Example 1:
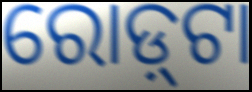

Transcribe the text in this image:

ରୋଡ଼୍‌ଟା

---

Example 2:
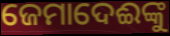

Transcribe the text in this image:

ଜେମାଦେଈଙ୍କୁ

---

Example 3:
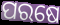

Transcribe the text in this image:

ପରଷେ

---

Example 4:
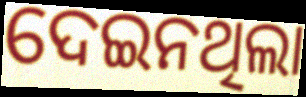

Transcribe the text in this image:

ଦେଇନଥିଲା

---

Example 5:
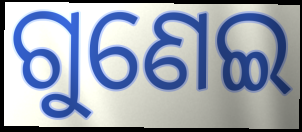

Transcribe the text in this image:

ଗୁଣେଇ